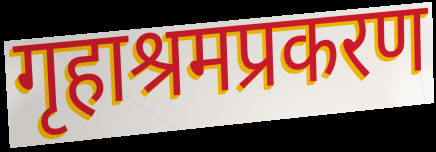
गृहाश्रमप्रकरण